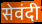
सेवंदी